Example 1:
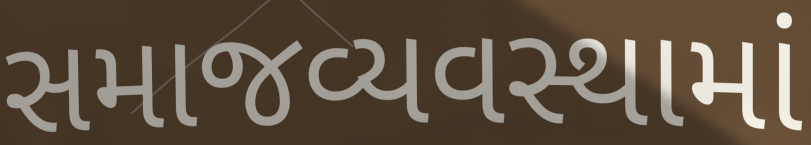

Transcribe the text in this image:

સમાજવ્યવસ્થામાં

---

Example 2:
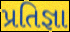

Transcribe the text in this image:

પ્રતિજ્ઞા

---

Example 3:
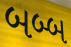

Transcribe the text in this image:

બબ્બ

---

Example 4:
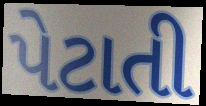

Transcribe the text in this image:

પેટાતી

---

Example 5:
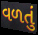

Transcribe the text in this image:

વળતું